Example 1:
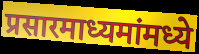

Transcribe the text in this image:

प्रसारमाध्यमांमध्ये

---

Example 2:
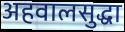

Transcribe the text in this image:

अहवालसुद्धा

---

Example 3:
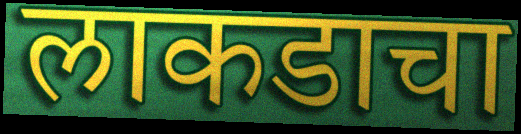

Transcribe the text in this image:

लाकडाचा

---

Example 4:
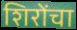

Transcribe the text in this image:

शिरोंचा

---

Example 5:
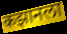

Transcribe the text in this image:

कझानला